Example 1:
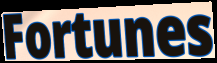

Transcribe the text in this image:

Fortunes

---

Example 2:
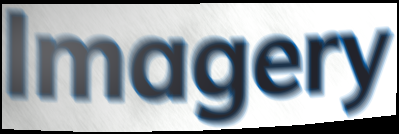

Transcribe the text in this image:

Imagery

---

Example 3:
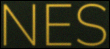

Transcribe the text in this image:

NES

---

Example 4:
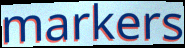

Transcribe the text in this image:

markers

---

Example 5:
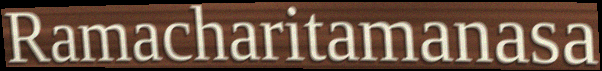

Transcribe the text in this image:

Ramacharitamanasa